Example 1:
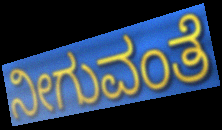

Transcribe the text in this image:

ನೀಗುವಂತೆ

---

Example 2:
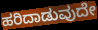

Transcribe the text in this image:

ಹರಿದಾಡುವುದೇ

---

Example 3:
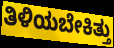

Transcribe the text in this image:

ತಿಳಿಯಬೇಕಿತ್ತು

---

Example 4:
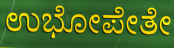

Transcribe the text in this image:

ಉಭೋಪೇತೇ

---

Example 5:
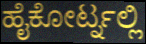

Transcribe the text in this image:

ಹೈಕೋರ್ಟ್ನಲ್ಲಿ